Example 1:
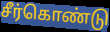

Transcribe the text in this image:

சீர்கொண்டு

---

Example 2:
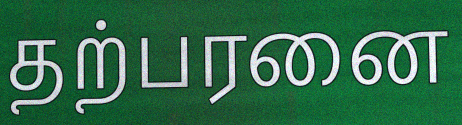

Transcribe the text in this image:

தற்பரனை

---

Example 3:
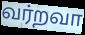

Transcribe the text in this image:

வர்றவா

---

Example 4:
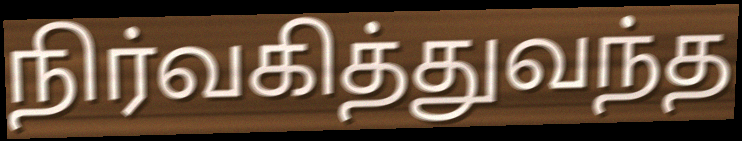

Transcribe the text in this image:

நிர்வகித்துவந்த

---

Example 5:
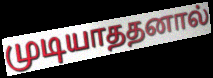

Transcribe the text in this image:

முடியாததனால்